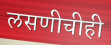
लसणीचीही